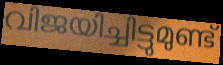
വിജയിച്ചിട്ടുമുണ്ട്